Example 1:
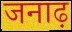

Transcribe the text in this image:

जनाढ़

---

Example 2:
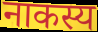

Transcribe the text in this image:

नाकस्य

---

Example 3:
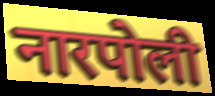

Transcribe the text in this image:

नारपोली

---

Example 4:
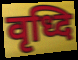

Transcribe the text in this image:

वृध्दि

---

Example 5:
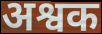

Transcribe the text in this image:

अश्वक